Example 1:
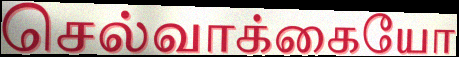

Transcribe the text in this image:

செல்வாக்கையோ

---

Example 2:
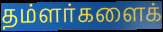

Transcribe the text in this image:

தம்ளர்களைக்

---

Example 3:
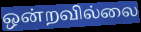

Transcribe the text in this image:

ஒன்றவில்லை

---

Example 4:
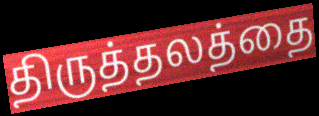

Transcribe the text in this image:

திருத்தலத்தை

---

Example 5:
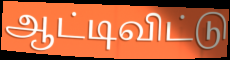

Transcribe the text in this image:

ஆட்டிவிட்டு